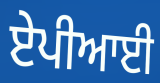
ਏਪੀਆਈ